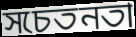
সচেতনতা